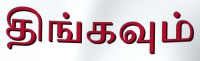
திங்கவும்